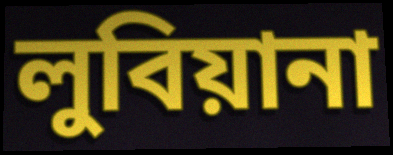
লুবিয়ানা